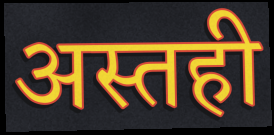
अस्तही